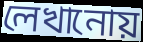
লেখানোয়